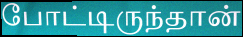
போட்டிருந்தான்